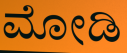
ಮೋಡಿ